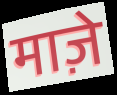
माज़े